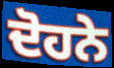
ਦੋਹਨੇ